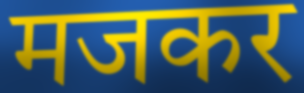
मजकर